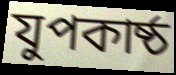
যুপকাষ্ঠ